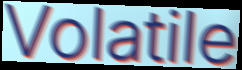
Volatile